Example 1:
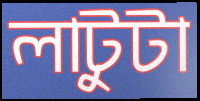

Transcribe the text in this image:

লাটুটা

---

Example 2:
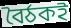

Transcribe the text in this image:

বৈঠকই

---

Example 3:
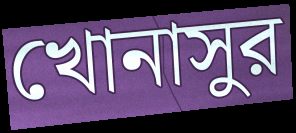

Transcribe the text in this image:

খোনাসুর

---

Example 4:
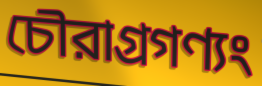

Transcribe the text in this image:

চৌরাগ্রগণ্যং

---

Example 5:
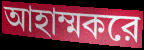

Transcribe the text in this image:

আহাম্মকরে